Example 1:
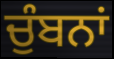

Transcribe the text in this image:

ਚੁੰਬਨਾਂ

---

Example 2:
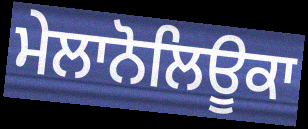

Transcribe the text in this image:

ਮੇਲਾਨੋਲਿਊਕਾ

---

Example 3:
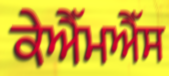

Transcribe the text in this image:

ਕੇਐੱਮਐੱਸ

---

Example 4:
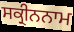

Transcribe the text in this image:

ਸਕ੍ਰੀਨਨਾਮ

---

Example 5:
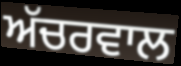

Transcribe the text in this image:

ਅੱਚਰਵਾਲ